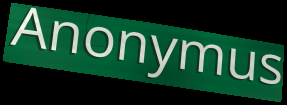
Anonymus